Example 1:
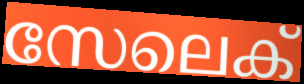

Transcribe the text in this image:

സേലെക്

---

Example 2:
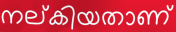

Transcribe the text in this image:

നല്കിയതാണ്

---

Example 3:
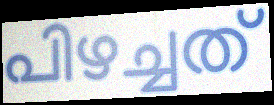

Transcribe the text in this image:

പിഴച്ചത്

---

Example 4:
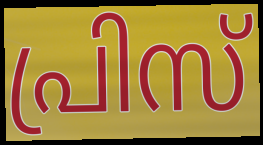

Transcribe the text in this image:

പ്രിസ്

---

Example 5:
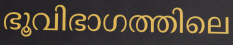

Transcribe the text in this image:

ഭൂവിഭാഗത്തിലെ